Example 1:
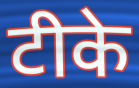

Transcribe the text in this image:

टीके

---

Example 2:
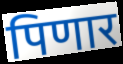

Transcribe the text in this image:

पिणार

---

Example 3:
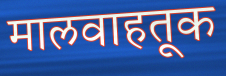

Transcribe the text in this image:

मालवाहतूक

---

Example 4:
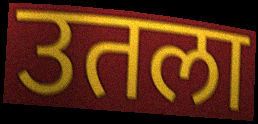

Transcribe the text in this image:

उतला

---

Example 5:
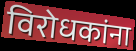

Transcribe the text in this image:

विरोधकांना